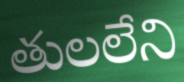
తులలేని